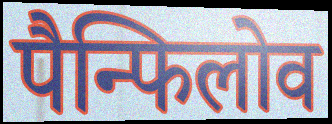
पैन्फिलोव